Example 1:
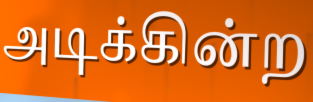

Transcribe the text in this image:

அடிக்கின்ற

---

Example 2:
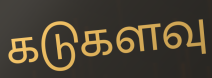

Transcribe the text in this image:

கடுகளவு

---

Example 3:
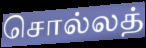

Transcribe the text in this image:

சொல்லத்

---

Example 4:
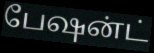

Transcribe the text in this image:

பேஷன்ட்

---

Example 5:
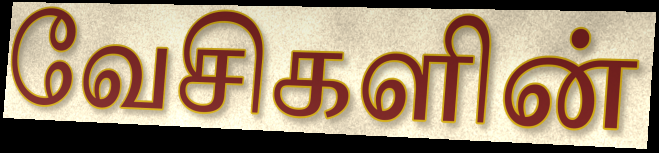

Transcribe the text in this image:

வேசிகளின்